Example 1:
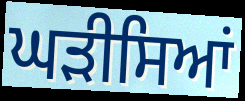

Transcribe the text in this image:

ਘੜੀਸਿਆਂ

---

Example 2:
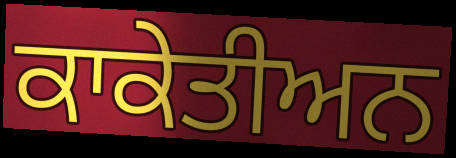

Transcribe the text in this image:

ਕਾਕੇਤੀਅਨ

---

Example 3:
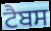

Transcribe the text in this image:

ਟੈਬਸ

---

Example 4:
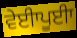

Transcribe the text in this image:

ਵੇਈਾਪੂਈਾ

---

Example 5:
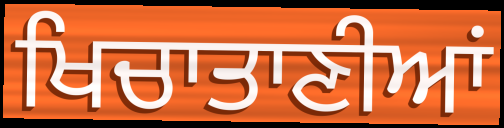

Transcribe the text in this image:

ਖਿਚਾਤਾਣੀਆਂ